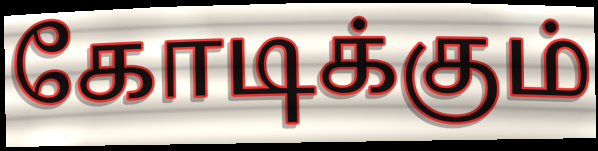
கோடிக்கும்